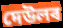
দেউলৰ